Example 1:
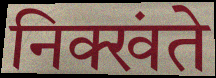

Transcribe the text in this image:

निक्खंते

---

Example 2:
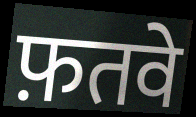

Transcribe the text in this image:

फ़तवे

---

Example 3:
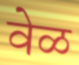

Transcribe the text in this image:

वेळ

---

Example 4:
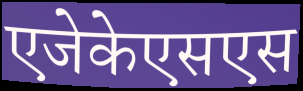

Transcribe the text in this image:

एजेकेएसएस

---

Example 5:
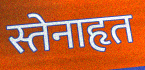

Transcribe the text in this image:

स्तेनाहृत